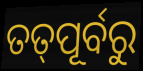
ତତ୍‌ପୂର୍ବରୁ